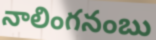
నాలింగనంబు